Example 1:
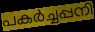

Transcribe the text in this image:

പകർച്ചപ്പനി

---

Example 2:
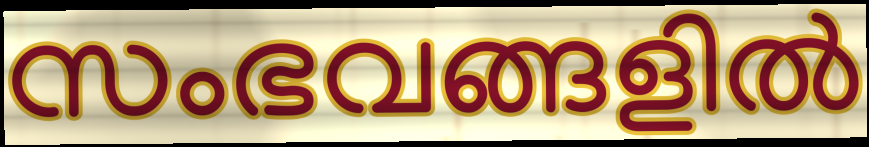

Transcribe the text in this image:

സംഭവങ്ങളിൽ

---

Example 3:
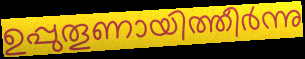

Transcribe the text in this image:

ഉപ്പുതൂണായിത്തീർന്നു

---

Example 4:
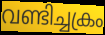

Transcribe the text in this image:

വണ്ടിച്ചക്രം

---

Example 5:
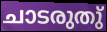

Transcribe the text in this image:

ചാടരുതു്